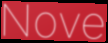
Nove